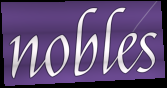
nobles